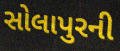
સોલાપુરની